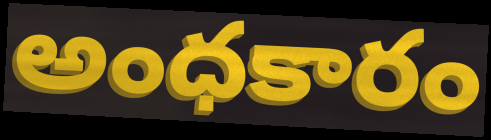
అంధకారం